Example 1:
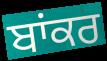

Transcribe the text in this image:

ਬਾਂਕਰ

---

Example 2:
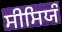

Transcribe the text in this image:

ਸੀਸਿਯੰ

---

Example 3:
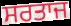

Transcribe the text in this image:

ਸਰਤਾਜ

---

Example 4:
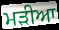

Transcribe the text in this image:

ਮੜੀਆ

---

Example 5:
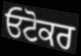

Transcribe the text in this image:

ਓਟੋਕਰ